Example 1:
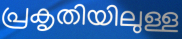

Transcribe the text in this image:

പ്രകൃതിയിലുള്ള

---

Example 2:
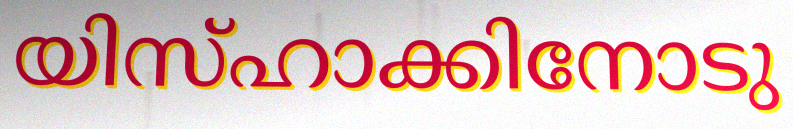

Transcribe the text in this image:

യിസ്ഹാക്കിനോടു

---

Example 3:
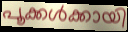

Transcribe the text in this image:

പൂക്കൾക്കായി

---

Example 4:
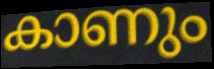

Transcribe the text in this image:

കാണും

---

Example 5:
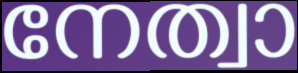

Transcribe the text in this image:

നേത്വാ